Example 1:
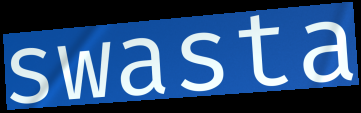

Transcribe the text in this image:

swasta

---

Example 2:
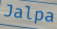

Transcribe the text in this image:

Jalpa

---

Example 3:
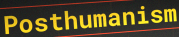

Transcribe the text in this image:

Posthumanism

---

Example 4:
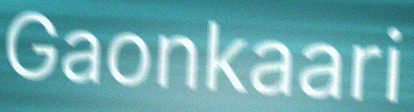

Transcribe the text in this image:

Gaonkaari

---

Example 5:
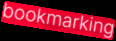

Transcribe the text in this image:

bookmarking